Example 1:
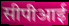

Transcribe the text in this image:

सीपीआई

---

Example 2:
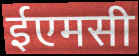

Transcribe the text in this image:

ईएमसी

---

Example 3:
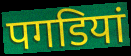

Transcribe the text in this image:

पगडियां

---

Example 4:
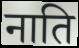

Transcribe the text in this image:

नाति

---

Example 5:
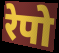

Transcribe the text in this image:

रेपो